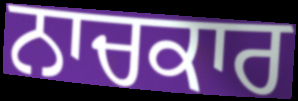
ਨਾਚਕਾਰ